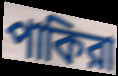
পাকিরা